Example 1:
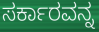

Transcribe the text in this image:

ಸರ್ಕಾರವನ್ನ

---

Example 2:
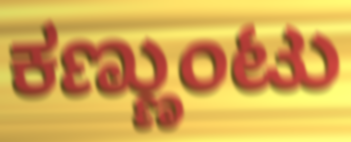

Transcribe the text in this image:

ಕಣ್ಣುಂಟು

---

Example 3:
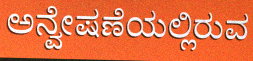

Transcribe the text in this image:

ಅನ್ವೇಷಣೆಯಲ್ಲಿರುವ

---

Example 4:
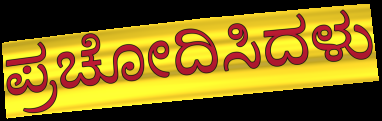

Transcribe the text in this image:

ಪ್ರಚೋದಿಸಿದಳು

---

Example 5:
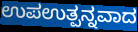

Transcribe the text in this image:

ಉಪಉತ್ಪನ್ನವಾದ